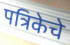
पत्रिकेचे